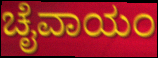
ಚೈವಾಯಂ